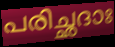
പരിച്ഛദാഃ